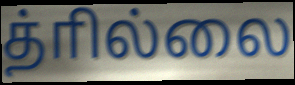
த்ரில்லை